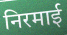
निरमाई